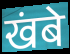
खंबे